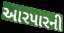
આરપારની